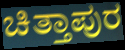
ಚಿತ್ತಾಪುರ